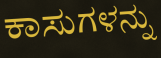
ಕಾಸುಗಳನ್ನು